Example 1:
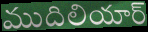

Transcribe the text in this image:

ముదిలియార్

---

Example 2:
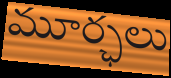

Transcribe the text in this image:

మూర్ఛలు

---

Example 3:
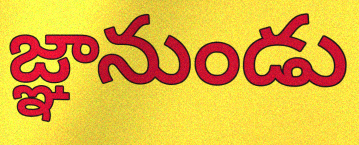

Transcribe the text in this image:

జ్ఞానుండు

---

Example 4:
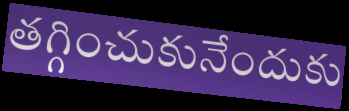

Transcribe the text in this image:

తగ్గించుకునేందుకు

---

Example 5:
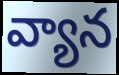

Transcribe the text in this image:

వ్యాన